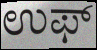
ಉಫ್